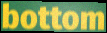
bottom